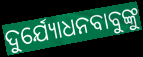
ଦୁର୍ଯ୍ୟୋଧନବାବୁଙ୍କୁ